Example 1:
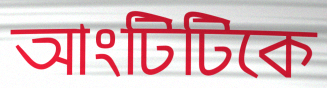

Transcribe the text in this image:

আংটিটিকে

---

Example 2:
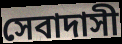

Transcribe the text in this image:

সেবাদাসী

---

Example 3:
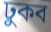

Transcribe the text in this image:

ঢুকব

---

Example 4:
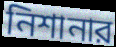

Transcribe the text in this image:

নিশানার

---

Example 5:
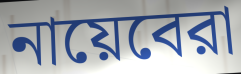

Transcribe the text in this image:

নায়েবেরা